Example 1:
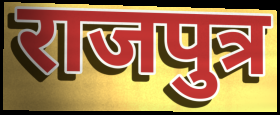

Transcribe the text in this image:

राजपुत्र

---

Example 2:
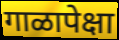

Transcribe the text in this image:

गाळापेक्षा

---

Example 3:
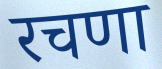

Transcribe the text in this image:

रचणा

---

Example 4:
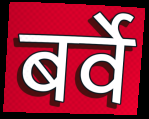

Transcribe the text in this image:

बर्वे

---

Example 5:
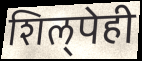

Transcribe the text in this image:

शिल्पेही